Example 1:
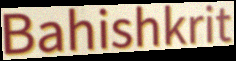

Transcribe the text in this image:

Bahishkrit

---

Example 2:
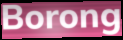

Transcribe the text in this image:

Borong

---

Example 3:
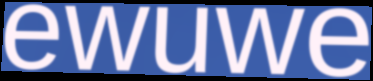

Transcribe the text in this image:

ewuwe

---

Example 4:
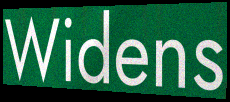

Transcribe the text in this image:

Widens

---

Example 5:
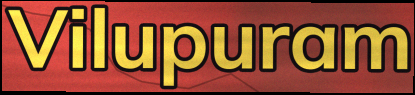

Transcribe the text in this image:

Vilupuram